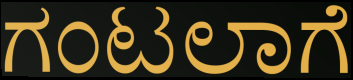
ಗಂಟಲಾಗೆ